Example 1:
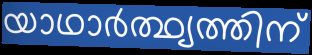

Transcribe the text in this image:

യാഥാർത്ഥ്യത്തിന്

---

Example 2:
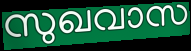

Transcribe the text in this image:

സുഖവാസ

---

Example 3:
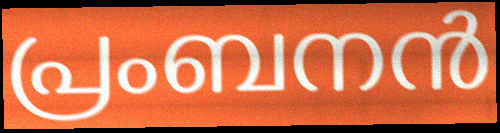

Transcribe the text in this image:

പ്രംബനൻ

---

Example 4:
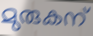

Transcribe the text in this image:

മുരുകന്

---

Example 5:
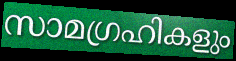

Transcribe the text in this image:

സാമഗ്രഹികളും